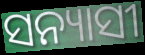
ସନ୍ୟାସୀ